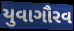
યુવાગૌરવ